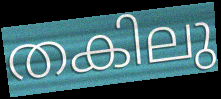
തകിലു